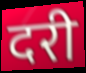
दरी